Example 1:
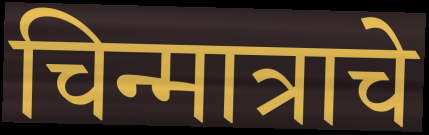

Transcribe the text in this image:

चिन्मात्राचे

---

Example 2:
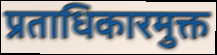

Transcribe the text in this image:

प्रताधिकारमुक्त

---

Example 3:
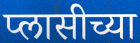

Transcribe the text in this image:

प्लासीच्या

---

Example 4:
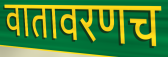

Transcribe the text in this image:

वातावरणच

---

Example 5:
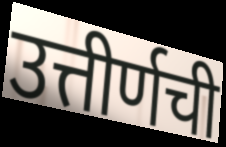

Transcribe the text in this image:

उत्तीर्णची